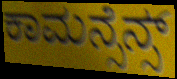
ಕಾಮನ್ಸೆನ್ಸ್